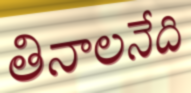
తినాలనేది